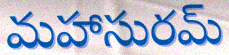
మహాసురమ్